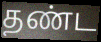
தண்ட